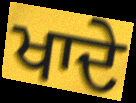
ਖਾਦੇ